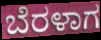
ಬೆರಳಾಗ